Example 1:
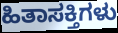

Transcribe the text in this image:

ಹಿತಾಸಕ್ತಿಗಳು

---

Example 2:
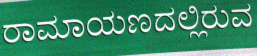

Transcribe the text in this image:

ರಾಮಾಯಣದಲ್ಲಿರುವ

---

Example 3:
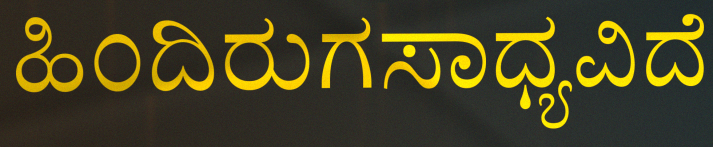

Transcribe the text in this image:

ಹಿಂದಿರುಗಸಾಧ್ಯವಿದೆ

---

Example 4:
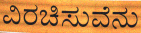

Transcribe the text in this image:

ವಿರಚಿಸುವೆನು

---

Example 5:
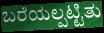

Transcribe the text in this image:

ಬರೆಯಲ್ಪಟ್ಟಿತು